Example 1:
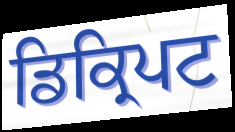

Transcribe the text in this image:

ਡਿਕ੍ਰਿਪਟ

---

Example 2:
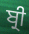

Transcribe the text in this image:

ਬ੍ਰੀ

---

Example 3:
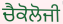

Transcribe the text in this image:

ਚੈਕੋਲੋਜੀ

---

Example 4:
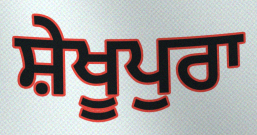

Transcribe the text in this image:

ਸ਼ੇਖੂਪੁਰਾ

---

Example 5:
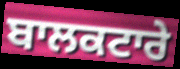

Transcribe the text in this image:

ਬਾਲਕਟਾਰੇ